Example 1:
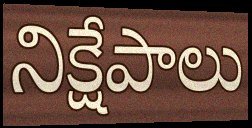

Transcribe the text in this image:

నిక్షేపాలు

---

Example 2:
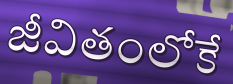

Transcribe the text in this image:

జీవితంలోకే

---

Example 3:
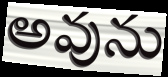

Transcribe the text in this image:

అవును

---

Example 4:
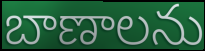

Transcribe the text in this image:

బాణాలను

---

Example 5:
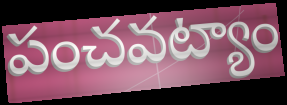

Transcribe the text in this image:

పంచవట్యాం